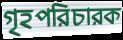
গৃহপরিচারক